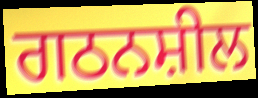
ਗਠਨਸ਼ੀਲ